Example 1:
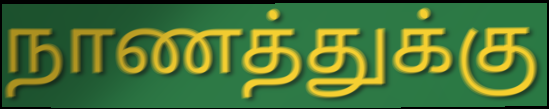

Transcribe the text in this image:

நாணத்துக்கு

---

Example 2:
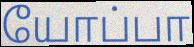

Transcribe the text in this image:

யோப்பா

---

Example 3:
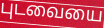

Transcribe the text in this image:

புடவையை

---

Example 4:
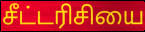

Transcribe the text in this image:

சீட்டரிசியை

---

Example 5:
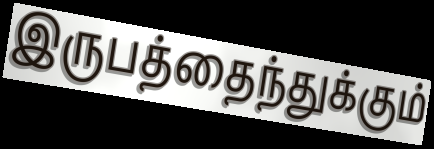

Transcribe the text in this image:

இருபத்தைந்துக்கும்